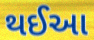
થઈઆ